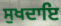
ਸੁਖਦਾਇ